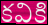
కవికి